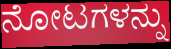
ನೋಟಗಳನ್ನು